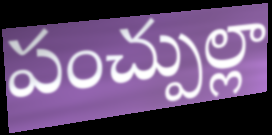
పంచ్పుల్లా